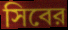
সিবের